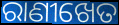
ରାଣୀଖେତ